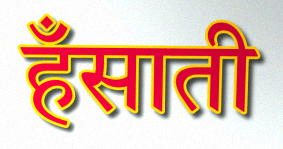
हँसाती